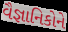
વૈજ્ઞાનિકોને